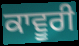
ਕਾਵੂਰੀ